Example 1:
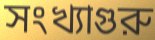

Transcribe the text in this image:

সংখ্যাগুৰু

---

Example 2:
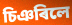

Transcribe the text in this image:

চিঞৰিলে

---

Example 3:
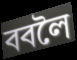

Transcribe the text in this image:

ববলৈ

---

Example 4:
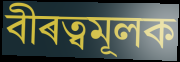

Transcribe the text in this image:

বীৰত্বমূলক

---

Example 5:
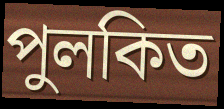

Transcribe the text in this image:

পুলকিত